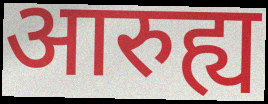
आरुह्य